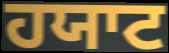
ਹਯਾਟ